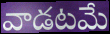
వాడటమే